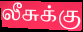
லீசுக்கு